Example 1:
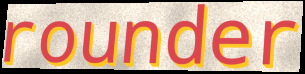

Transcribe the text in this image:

rounder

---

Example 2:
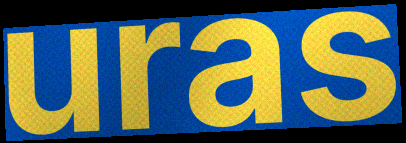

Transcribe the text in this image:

uras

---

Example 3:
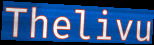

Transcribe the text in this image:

Thelivu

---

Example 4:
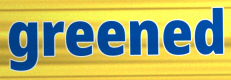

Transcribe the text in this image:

greened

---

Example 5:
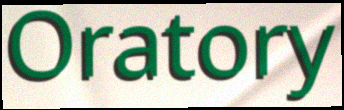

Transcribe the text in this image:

Oratory